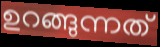
ഉറങ്ങുന്നത്